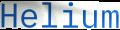
Helium